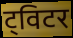
ट्‌विटर